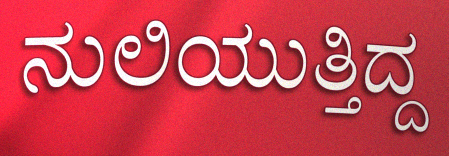
ನುಲಿಯುತ್ತಿದ್ದ